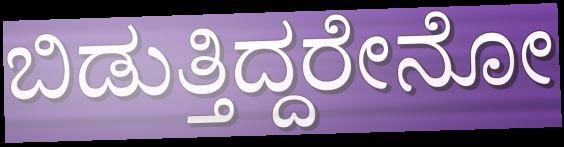
ಬಿಡುತ್ತಿದ್ದರೇನೋ